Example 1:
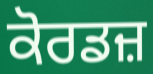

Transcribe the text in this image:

ਕੋਰਡਜ਼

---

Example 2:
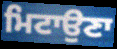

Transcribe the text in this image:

ਮਿਟਾਉਣਾ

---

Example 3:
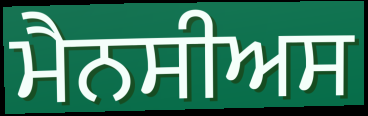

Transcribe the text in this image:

ਮੈਨਸੀਅਸ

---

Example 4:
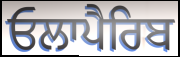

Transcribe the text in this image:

ਓਲਾਪੈਰਿਬ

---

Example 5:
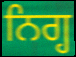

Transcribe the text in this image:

ਨਿਗ੍ਹ